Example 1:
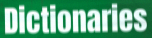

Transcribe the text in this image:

Dictionaries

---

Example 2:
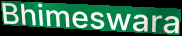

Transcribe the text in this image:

Bhimeswara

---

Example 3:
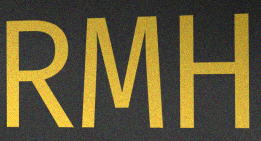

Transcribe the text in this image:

RMH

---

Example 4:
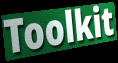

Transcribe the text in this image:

Toolkit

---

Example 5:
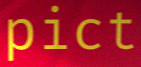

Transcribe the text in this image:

pict